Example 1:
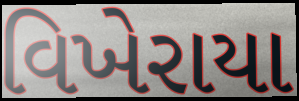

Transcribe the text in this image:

વિખેરાયા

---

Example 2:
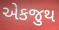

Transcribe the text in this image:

એકજુથ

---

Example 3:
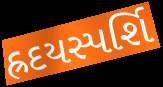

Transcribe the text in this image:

હ્રદયસ્પર્શિ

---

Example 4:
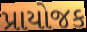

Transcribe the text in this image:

પ્રાયોજક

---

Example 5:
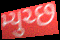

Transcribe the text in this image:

મ્યુચ્છ